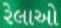
રેલાઓ